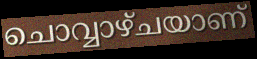
ചൊവ്വാഴ്ചയാണ്